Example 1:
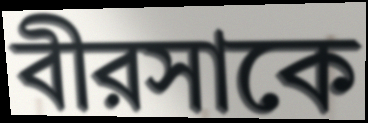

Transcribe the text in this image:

বীরসাকে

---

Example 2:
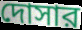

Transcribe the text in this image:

দোসার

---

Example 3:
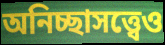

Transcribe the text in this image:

অনিচ্ছাসত্ত্বেও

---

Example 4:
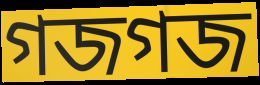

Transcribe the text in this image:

গজগজ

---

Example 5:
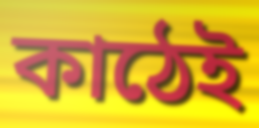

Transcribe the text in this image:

কাঠেই